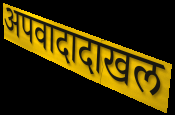
अपवादादाखल